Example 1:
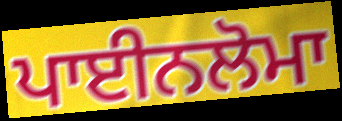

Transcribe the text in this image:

ਪਾਈਨਲੋਮਾ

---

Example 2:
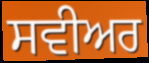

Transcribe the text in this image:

ਸਵੀਅਰ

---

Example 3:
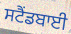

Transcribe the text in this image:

ਸਟੈਂਡਬਾਈ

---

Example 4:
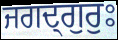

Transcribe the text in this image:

ਜਗਦ੍ਗੁਰੁਃ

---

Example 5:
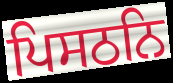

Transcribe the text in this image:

ਪਿਸਠਨਿ